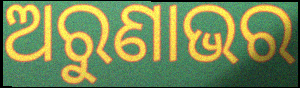
ଅରୁଣାଭର